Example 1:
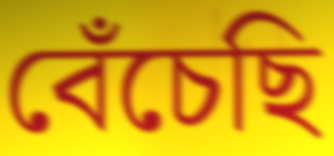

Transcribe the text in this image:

বেঁচেছি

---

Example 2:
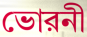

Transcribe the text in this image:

ভোরনী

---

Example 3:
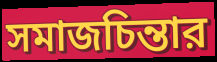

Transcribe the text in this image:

সমাজচিন্তার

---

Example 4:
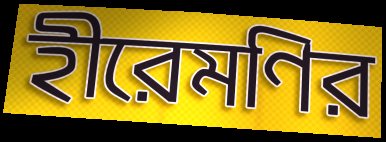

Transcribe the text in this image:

হীরেমণির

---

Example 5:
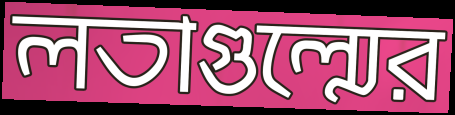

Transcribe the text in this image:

লতাগুল্মের